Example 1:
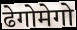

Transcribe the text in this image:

ढेगोमेगो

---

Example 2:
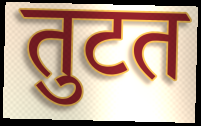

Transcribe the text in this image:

तुटत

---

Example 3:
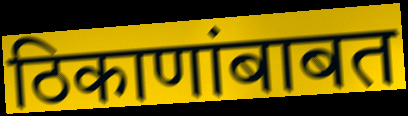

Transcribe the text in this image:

ठिकाणांबाबत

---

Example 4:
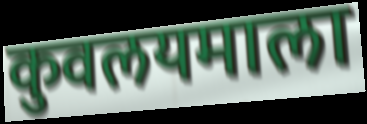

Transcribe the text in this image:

कुवलयमाला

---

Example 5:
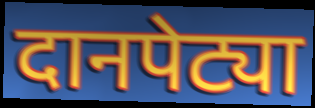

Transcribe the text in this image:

दानपेट्या